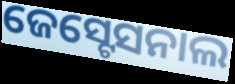
ଜେସ୍ଟେସନାଲ